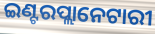
ଇଣ୍ଟରପ୍ଲାନେଟାରୀ